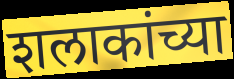
शलाकांच्या